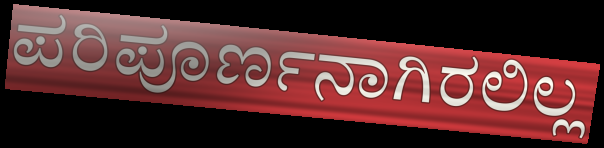
ಪರಿಪೂರ್ಣನಾಗಿರಲಿಲ್ಲ